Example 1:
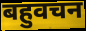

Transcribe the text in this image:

बहुवचन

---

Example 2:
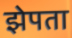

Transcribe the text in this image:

झेपता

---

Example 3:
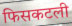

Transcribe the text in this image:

फिसकटली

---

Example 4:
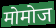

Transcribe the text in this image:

मोमोज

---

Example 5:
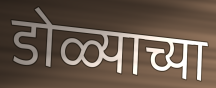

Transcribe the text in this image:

डोळ्याच्या